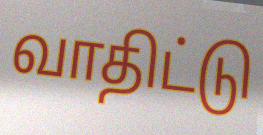
வாதிட்டு